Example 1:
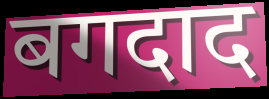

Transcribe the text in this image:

बगदाद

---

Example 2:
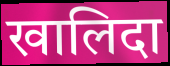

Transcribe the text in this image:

खालिदा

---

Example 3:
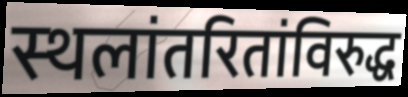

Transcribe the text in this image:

स्थलांतरितांविरुद्ध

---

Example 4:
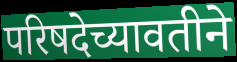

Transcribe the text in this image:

परिषदेच्यावतीने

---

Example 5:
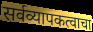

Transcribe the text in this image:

सर्वव्यापकत्वाचा